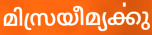
മിസ്രയീമ്യൎക്കു